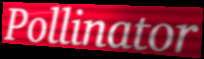
Pollinator